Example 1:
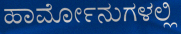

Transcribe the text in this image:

ಹಾರ್ಮೋನುಗಳಲ್ಲಿ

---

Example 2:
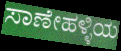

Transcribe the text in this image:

ಸಾಣೇಹಳ್ಳಿಯ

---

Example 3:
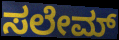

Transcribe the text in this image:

ಸಲೇಮ್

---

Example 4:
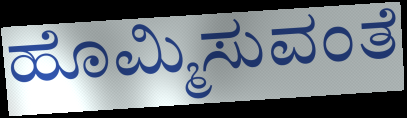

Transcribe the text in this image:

ಹೊಮ್ಮಿಸುವಂತೆ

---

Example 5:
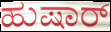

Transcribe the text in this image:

ಹುಷಾರ್